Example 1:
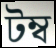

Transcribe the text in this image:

টম্ব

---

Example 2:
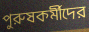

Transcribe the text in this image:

পুরুষকর্মীদের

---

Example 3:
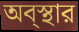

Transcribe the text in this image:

অব্স্থার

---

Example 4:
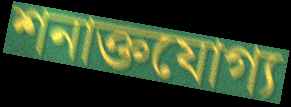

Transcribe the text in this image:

শনাক্তযোগ্য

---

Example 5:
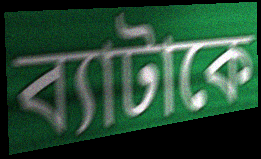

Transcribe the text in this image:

ব্যাটাকে